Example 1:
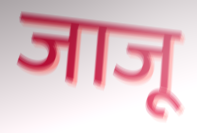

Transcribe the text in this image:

जाजू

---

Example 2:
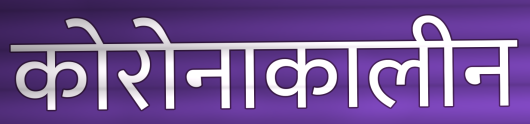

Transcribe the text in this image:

कोरोनाकालीन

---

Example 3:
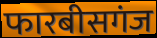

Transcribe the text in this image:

फारबीसगंज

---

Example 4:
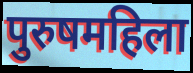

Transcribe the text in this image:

पुरुषमहिला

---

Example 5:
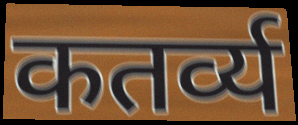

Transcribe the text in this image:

कतर्व्य